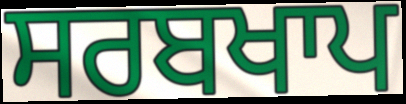
ਸਰਬਖਾਪ